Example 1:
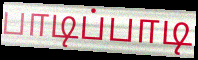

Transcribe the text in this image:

பாடிப்பாடி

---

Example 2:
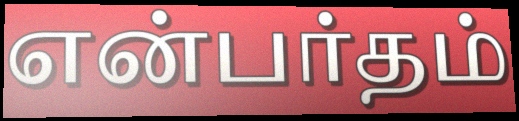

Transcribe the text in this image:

என்பர்தம்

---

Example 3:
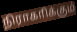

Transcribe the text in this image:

நிராகரிக்கும்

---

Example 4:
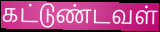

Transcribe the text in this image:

கட்டுண்டவள்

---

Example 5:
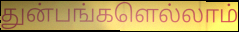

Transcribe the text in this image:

துன்பங்களெல்லாம்